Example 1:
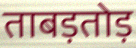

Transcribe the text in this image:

ताबड़तोड़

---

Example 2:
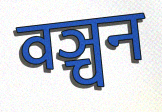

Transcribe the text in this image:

वञ्चन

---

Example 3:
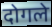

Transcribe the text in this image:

दोगले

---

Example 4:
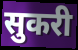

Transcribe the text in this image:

सुकरी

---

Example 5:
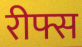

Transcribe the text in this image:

रीफ्स